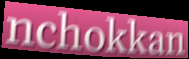
nchokkan